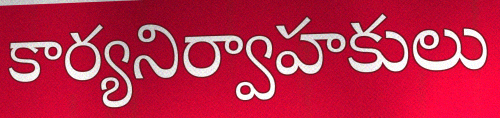
కార్యనిర్వాహకులు